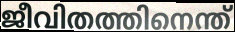
ജീവിതത്തിനെന്ത്